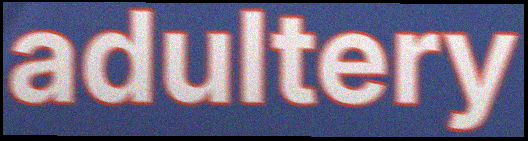
adultery